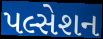
પલ્સેશન